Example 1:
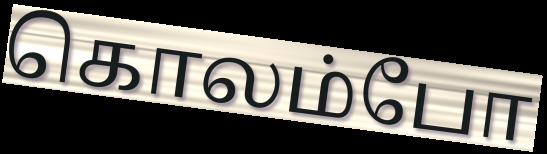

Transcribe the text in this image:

கொலம்போ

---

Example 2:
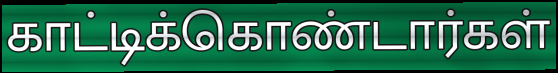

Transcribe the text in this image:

காட்டிக்கொண்டார்கள்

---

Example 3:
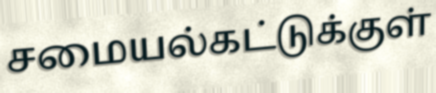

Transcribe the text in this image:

சமையல்கட்டுக்குள்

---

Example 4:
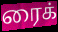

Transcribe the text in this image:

ரைக்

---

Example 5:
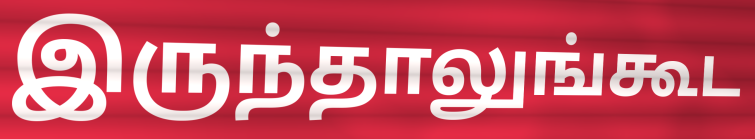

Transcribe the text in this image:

இருந்தாலுங்கூட